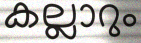
കല്ലാറും